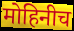
मोहिनीच